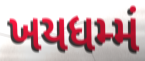
ખયધમ્મં